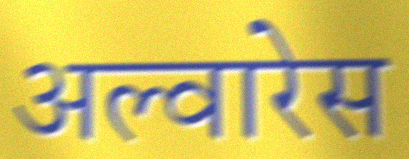
अल्वारेस